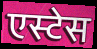
एस्टेस